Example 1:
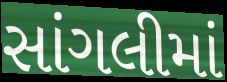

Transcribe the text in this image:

સાંગલીમાં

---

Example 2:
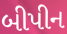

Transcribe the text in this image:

બીપીન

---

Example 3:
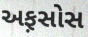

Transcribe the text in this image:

અફ઼સોસ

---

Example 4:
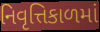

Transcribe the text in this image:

નિવૃત્તિકાળમાં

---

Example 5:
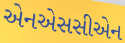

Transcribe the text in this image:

એનએસસીએન